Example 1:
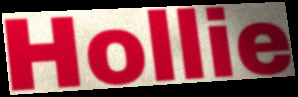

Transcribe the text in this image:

Hollie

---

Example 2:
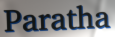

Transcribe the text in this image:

Paratha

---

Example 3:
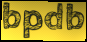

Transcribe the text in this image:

bpdb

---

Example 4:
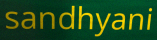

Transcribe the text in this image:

sandhyani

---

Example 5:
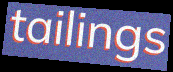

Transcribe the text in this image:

tailings